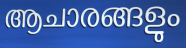
ആചാരങ്ങളും